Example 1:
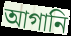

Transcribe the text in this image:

আগানি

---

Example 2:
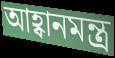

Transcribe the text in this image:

আহ্বানমন্ত্র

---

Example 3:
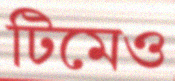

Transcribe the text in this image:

টিমেও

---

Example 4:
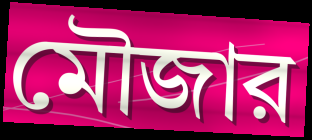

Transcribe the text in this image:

মৌজার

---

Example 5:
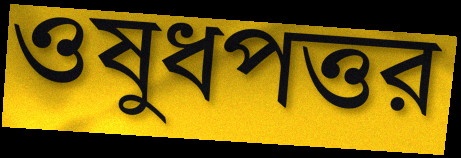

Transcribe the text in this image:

ওষুধপত্তর